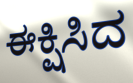
ಈಕ್ಷಿಸಿದ